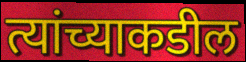
त्यांच्याकडील